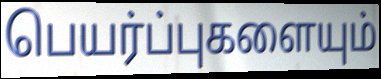
பெயர்ப்புகளையும்